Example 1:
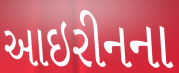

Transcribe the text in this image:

આઇરીનના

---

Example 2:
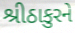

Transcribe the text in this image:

શ્રીઠાકુરને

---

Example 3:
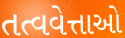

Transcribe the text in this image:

તત્વવેત્તાઓ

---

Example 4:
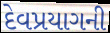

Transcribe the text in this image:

દેવપ્રયાગની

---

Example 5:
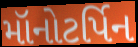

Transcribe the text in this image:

મૉનોટર્પિન